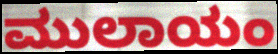
ಮುಲಾಯಂ